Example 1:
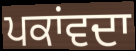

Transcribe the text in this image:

ਪਕਾਂਵਦਾ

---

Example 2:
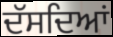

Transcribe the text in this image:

ਦੱਸਦਿਆਂ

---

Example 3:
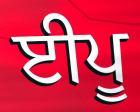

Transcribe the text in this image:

ਈਪੂ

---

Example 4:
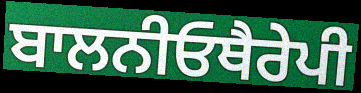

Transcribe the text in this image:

ਬਾਲਨੀਓਥੈਰੇਪੀ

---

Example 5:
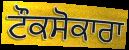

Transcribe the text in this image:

ਟੌਕਸੋਕਾਰਾ